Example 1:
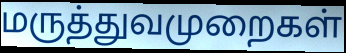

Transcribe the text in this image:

மருத்துவமுறைகள்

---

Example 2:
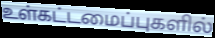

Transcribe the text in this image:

உள்கட்டமைப்புகளில்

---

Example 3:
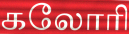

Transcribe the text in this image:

கலோரி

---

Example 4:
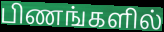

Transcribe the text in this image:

பிணங்களில்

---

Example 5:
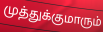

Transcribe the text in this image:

முத்துக்குமாரும்